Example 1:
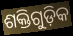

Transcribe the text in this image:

ଶକ୍ତିଗୁଡ଼ିକ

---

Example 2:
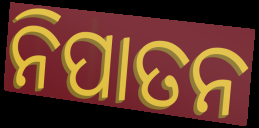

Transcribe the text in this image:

ନିପାତନ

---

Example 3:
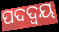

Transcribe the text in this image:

ପଦଦ୍ଵୟ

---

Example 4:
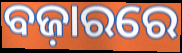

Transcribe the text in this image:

ବଜ଼ାରରେ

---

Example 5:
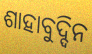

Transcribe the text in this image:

ଶାହାବୁଦ୍ଦିନ